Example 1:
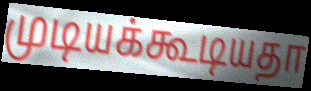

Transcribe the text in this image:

முடியக்கூடியதா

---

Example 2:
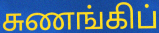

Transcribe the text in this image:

சுணங்கிப்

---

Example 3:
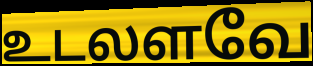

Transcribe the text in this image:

உடலளவே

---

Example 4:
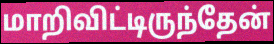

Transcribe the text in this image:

மாறிவிட்டிருந்தேன்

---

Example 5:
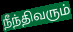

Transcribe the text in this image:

நீந்திவரும்